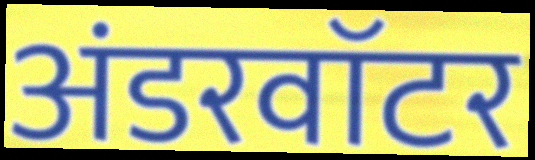
अंडरवॉटर